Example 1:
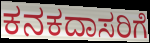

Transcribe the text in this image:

ಕನಕದಾಸರಿಗೆ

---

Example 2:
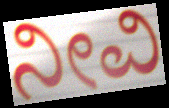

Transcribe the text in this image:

ನೀವಿ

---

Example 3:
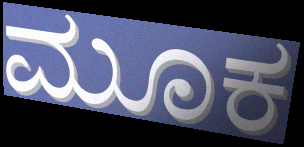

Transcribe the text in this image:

ಮೂಕ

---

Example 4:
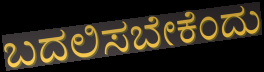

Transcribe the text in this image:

ಬದಲಿಸಬೇಕೆಂದು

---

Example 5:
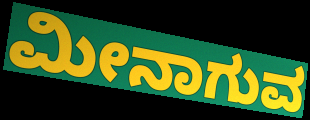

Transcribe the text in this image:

ಮೀನಾಗುವ